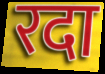
रदा